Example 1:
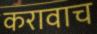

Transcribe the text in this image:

करावाच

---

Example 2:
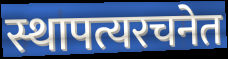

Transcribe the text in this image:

स्थापत्यरचनेत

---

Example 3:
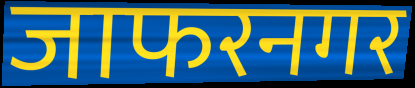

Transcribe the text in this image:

जाफरनगर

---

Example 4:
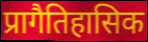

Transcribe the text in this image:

प्रागैतिहासिक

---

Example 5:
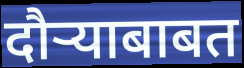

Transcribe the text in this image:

दौऱ्याबाबत